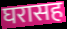
घरासह